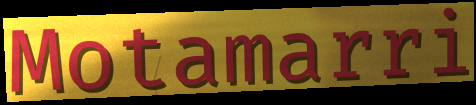
Motamarri